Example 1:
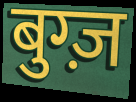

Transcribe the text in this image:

बुग्ज़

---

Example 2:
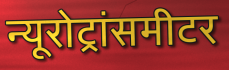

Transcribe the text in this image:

न्यूरोट्रांसमीटर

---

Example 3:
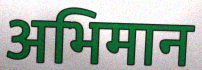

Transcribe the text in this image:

अभिमान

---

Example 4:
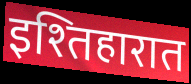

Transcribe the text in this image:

इश्तिहारात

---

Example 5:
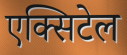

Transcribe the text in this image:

एक्सिटेल